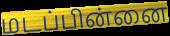
மடப்பின்னை